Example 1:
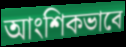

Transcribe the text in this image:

আংশিকভাবে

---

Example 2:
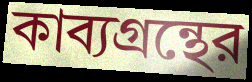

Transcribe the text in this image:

কাব্যগ্রন্থের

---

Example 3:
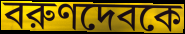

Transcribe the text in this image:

বরুণদেবকে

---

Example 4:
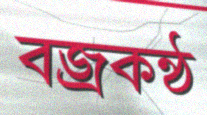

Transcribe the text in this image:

বজ্রকন্ঠ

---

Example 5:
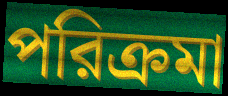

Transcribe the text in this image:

পরিক্রমা